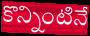
కొన్నింటినే